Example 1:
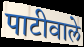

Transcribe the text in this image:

पाटीवाले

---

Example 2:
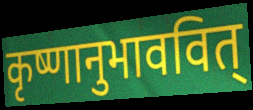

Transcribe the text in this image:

कृष्णानुभाववित्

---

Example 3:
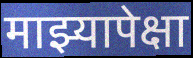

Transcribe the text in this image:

माझ्यापेक्षा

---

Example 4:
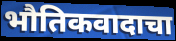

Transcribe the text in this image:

भौतिकवादाचा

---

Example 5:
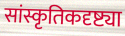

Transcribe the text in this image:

सांस्कृतिकदृष्ट्या